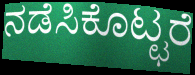
ನಡೆಸಿಕೊಟ್ಟರೆ